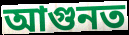
আগুনত